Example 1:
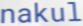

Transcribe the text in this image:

nakul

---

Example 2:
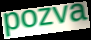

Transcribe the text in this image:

pozva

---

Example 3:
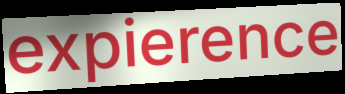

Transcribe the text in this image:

expierence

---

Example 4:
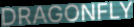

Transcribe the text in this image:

DRAGONFLY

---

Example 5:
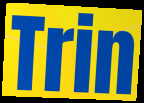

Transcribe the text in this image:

Trin